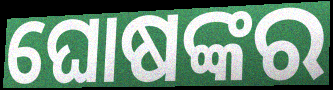
ଘୋଷଙ୍କର